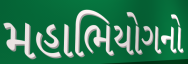
મહાભિયોગનો